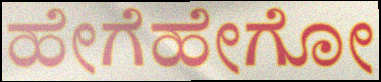
ಹೇಗೆಹೇಗೋ